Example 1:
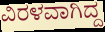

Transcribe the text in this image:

ವಿರಳವಾಗಿದ್ದ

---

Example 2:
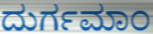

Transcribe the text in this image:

ದುರ್ಗಮಾಂ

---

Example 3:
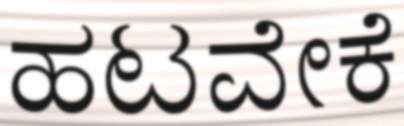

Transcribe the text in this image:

ಹಟವೇಕೆ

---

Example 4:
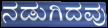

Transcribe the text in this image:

ನಡುಗಿದವು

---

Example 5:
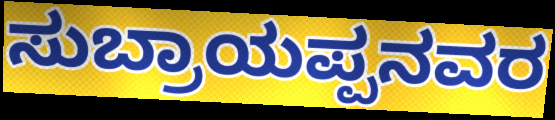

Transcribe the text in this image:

ಸುಬ್ರಾಯಪ್ಪನವರ